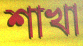
শাখা